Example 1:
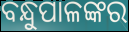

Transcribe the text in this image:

ବନ୍ଧୁପାଳଙ୍କର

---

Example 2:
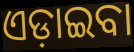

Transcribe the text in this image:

ଏଡ଼ାଇବା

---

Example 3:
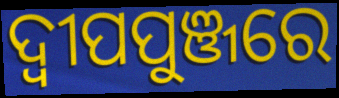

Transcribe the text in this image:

ଦ୍ବୀପପୁଞ୍ଜରେ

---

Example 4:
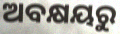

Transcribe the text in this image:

ଅବକ୍ଷୟରୁ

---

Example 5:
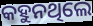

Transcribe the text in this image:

କହୁନଥିଲେ